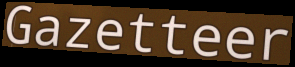
Gazetteer